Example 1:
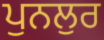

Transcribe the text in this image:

ਪੁਨਲੁਰ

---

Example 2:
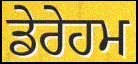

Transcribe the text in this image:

ਡੇਰੇਹਮ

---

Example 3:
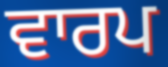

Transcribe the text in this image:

ਵਾਰਪ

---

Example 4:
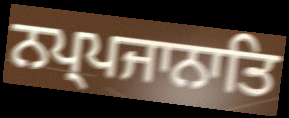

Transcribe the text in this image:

ਨਪ੍ਪਜਾਨਾਤਿ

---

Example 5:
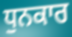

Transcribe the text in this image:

ਧੁਨਕਾਰ